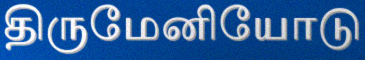
திருமேனியோடு